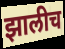
झालीच